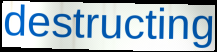
destructing